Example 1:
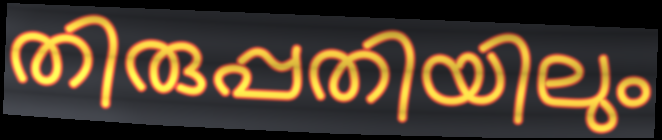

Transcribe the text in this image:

തിരുപ്പതിയിലും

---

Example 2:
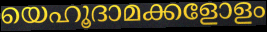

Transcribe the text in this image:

യെഹൂദാമക്കളോളം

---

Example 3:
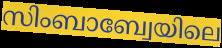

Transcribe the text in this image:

സിംബാബ്വേയിലെ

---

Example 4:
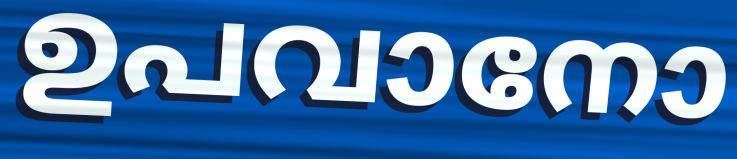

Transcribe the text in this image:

ഉപവാനോ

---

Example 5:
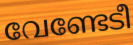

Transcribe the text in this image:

വേണ്ടേടീ